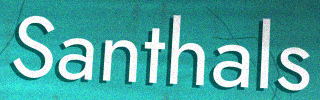
Santhals